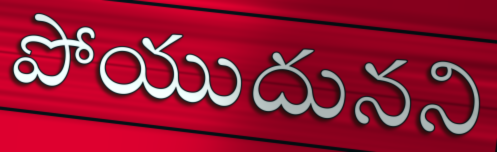
పోయుదునని